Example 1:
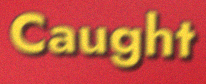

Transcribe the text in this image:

Caught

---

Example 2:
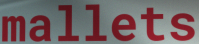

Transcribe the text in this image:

mallets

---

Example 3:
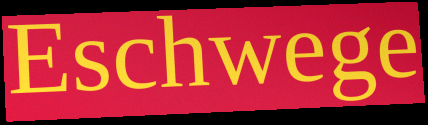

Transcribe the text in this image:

Eschwege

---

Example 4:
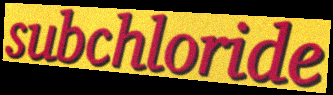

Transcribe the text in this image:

subchloride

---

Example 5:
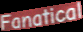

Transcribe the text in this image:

Fanatical